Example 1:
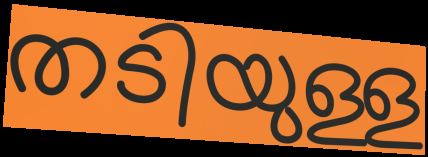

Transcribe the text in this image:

തടിയുള്ള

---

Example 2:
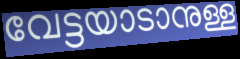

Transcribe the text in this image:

വേട്ടയാടാനുള്ള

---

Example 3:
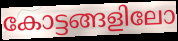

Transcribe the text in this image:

കോട്ടങ്ങളിലോ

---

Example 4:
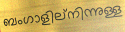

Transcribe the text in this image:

ബംഗാളില്നിന്നുള്ള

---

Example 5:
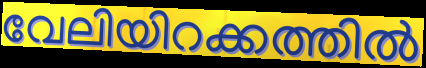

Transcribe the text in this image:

വേലിയിറക്കത്തിൽ